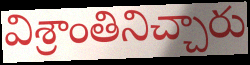
విశ్రాంతినిచ్చారు